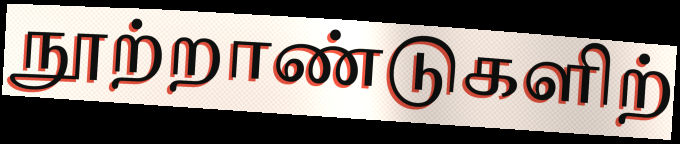
நூற்றாண்டுகளிற்